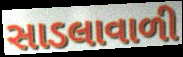
સાડલાવાળી